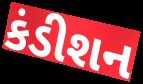
કંડીશન